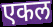
एकल